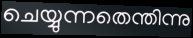
ചെയ്യുന്നതെന്തിന്നു